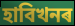
হাবিখনৰ